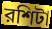
রশিটা